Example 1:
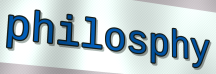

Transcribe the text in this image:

philosphy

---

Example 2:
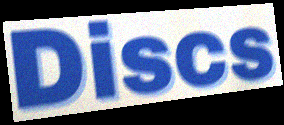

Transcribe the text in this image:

Discs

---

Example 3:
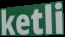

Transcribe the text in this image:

ketli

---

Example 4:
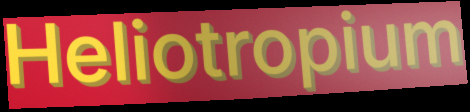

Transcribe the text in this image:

Heliotropium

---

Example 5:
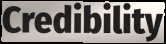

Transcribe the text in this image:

Credibility